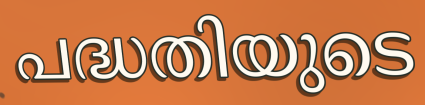
പദ്ധതിയുടെ